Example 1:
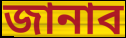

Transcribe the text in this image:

জানাব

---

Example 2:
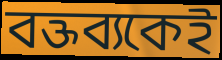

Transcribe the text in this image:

বক্তব্যকেই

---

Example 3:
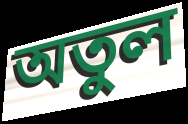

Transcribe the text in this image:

অতুল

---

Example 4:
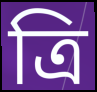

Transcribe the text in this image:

ত্রি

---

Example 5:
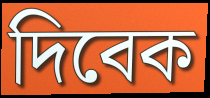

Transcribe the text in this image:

দিবেক